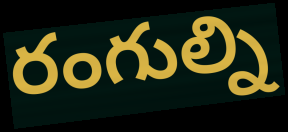
రంగుల్ని